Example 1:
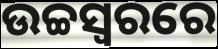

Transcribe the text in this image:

ଉଚ୍ଚସ୍ୱରରେ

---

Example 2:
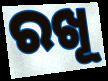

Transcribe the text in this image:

ରଖୂ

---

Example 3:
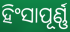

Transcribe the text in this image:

ହିଂସାପୂର୍ଣ୍ଣ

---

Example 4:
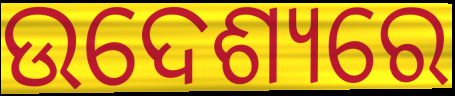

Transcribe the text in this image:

ଉଦେଶ୍ୟରେ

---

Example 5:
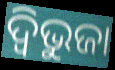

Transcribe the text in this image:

ଦ୍ବିଭୁଜା